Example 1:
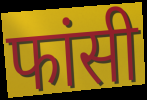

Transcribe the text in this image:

फांसी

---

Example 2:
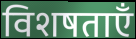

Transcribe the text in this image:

विशषताएँ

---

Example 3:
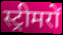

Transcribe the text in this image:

स्ट्रीमरों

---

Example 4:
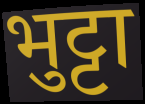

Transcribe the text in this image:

भुट्टा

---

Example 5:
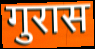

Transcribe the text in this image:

गुरास